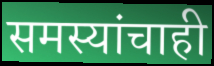
समस्यांचाही